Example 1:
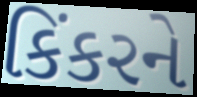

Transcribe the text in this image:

કિંકરને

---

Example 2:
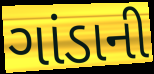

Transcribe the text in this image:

ગાંડાની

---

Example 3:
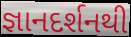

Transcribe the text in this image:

જ્ઞાનદર્શનથી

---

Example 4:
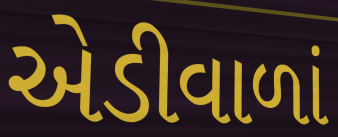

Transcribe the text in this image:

એડીવાળાં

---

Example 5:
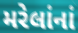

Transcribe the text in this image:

મરેલાંનાં